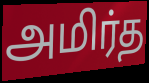
அமிர்த